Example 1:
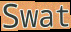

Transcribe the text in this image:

Swat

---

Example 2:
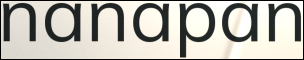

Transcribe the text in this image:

nanapan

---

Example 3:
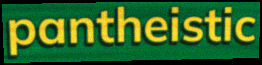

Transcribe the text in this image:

pantheistic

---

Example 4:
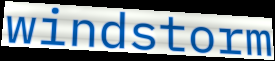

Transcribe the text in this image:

windstorm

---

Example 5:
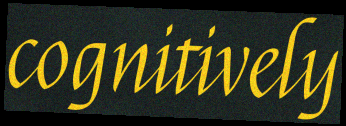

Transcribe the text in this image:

cognitively